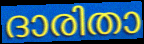
ദാരിതാ